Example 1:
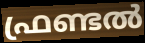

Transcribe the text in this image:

ഫ്രണ്ടൽ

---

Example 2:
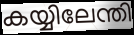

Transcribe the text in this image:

കയ്യിലേന്തി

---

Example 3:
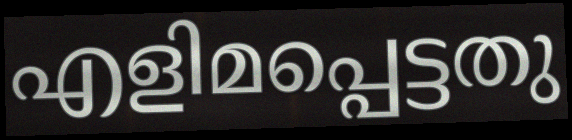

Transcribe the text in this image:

എളിമപ്പെട്ടതു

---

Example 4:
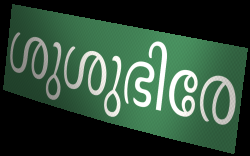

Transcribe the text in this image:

ശുശുഭിരേ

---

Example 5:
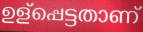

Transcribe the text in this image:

ഉള്പ്പെട്ടതാണ്